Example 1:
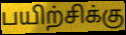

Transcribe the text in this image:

பயிற்சிக்கு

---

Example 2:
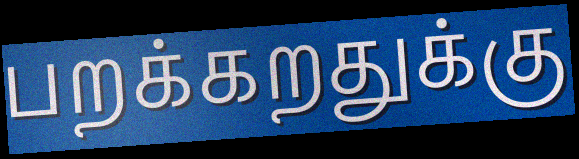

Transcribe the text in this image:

பறக்கறதுக்கு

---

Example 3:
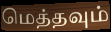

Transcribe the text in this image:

மெத்தவும்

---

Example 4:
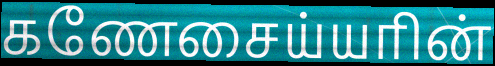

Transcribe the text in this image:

கணேசைய்யரின்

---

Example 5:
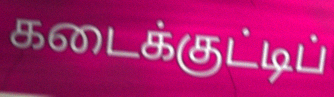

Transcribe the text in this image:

கடைக்குட்டிப்